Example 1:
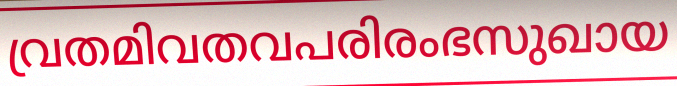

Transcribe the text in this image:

വ്രതമിവതവപരിരംഭസുഖായ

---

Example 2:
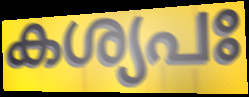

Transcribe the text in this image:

കശ്യപഃ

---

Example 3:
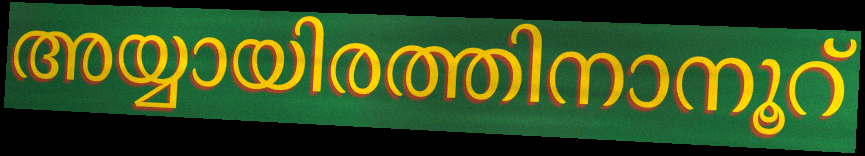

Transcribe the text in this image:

അയ്യായിരത്തിനാനൂറ്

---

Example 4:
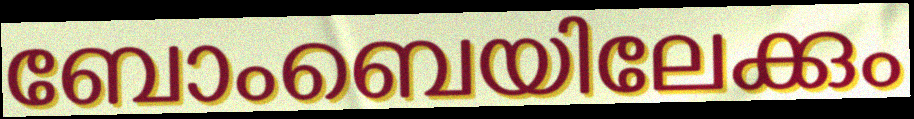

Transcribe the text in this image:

ബോംബെയിലേക്കും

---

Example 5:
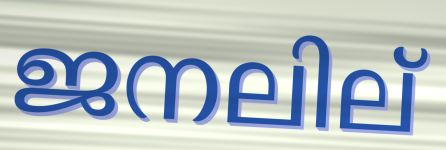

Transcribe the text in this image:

ജനലില്